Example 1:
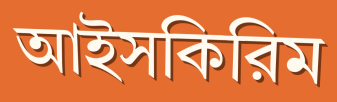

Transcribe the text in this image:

আইসকিরিম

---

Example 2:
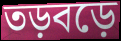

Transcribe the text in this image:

তড়বড়ে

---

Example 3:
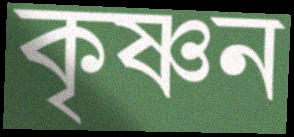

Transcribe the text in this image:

কৃষ্ণন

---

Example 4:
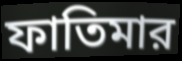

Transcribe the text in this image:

ফাতিমার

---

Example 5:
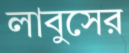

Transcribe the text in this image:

লাবুসের